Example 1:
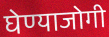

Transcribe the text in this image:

घेण्याजोगी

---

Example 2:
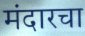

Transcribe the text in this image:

मंदारचा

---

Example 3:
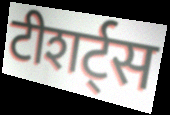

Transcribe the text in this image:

टीशर्ट्स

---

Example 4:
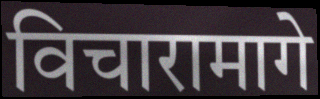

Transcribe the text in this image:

विचारामागे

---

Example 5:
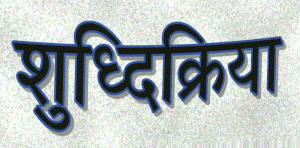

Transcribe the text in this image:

शुध्दिक्रिया